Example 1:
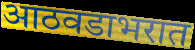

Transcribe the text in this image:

आठवडाभरात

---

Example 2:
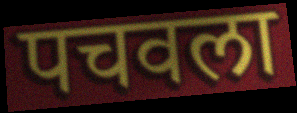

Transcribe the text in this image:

पचवला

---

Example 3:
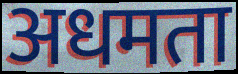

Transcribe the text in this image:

अधमता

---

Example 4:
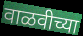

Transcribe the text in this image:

वाळवीच्या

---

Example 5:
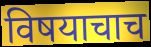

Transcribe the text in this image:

विषयाचाच